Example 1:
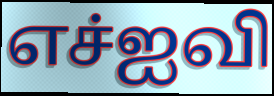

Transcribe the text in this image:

எச்ஐவி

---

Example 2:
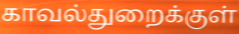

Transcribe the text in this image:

காவல்துறைக்குள்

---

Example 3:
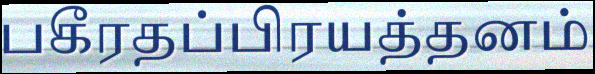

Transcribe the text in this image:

பகீரதப்பிரயத்தனம்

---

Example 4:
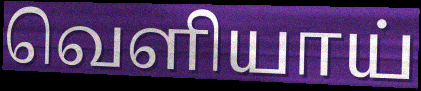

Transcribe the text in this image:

வெளியாய்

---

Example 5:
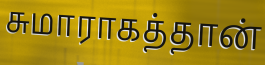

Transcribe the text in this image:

சுமாராகத்தான்